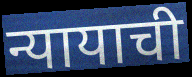
न्यायाची